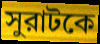
সুরাটকে